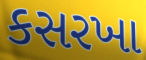
કસરખા